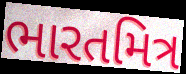
ભારતમિત્ર